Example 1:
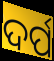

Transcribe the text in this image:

ଦର୍ପ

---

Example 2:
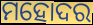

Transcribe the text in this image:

ମହୋଦର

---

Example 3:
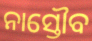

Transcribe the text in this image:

ନାସ୍ତୌବ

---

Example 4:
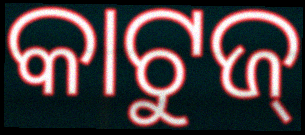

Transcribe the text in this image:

କାଟୁଜ୍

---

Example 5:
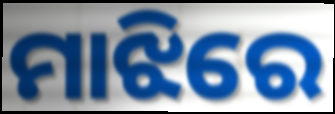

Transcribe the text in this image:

ମାଝିରେ